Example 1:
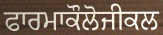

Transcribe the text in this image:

ਫਾਰਮਾਕੌਲੋਜੀਕਲ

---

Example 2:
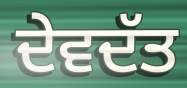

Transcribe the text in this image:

ਦੇਵਦੱਤ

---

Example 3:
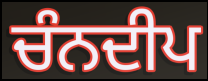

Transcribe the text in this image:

ਚੰਨਦੀਪ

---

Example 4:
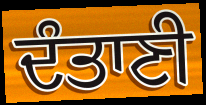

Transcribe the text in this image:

ਦੰਤਾਣੀ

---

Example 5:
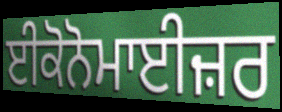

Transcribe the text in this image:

ਈਕੋਨੋਮਾਈਜ਼ਰ